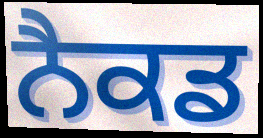
ਨੈਕਡ